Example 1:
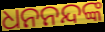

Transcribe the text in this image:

ଧନନନ୍ଦଙ୍କ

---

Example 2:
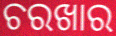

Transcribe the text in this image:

ଚରଖାର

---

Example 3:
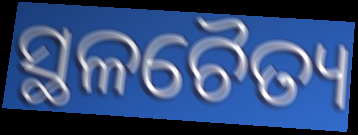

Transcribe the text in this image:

ସ୍ଥଳଚୈତ୍ୟ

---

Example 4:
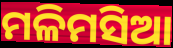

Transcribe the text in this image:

ମଳିମସିଆ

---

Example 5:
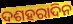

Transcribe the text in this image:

ଦଶହରାଦିନ